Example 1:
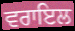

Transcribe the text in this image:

ਵਰਾਇਲ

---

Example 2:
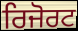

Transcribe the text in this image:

ਰਿਜੋਰਟ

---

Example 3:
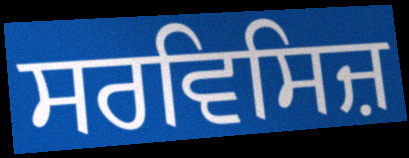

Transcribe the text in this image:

ਸਰਵਿਸਿਜ਼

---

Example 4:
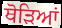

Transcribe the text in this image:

ਥੋੜਿਆਂ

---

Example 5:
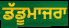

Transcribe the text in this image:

ਡੱਡੂਮਾਜਰਾ